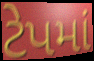
ટેપમાં